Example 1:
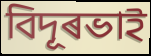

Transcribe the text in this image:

বিদূৰভাই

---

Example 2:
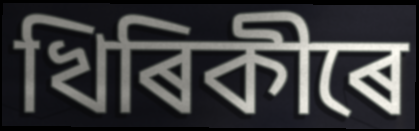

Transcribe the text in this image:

খিৰিকীৰে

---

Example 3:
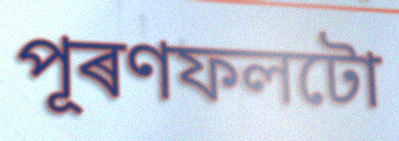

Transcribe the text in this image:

পূৰণফলটো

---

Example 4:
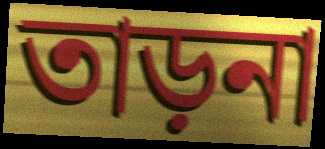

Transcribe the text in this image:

তাড়না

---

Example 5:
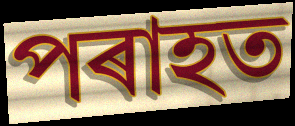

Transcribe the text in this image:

পৰাহত